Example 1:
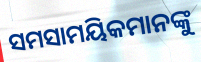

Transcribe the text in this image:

ସମସାମୟିକମାନଙ୍କୁ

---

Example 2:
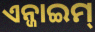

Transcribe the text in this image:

ଏନ୍ଜାଇମ୍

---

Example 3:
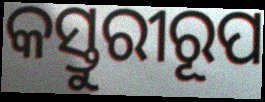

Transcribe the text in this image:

କସ୍ତୁରୀରୂପ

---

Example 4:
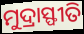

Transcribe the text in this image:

ମୁଦ୍ରାସ୍ଫୀତି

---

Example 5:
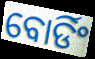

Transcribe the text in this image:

ବୋର୍ଡିଂ